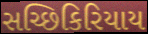
સચ્છિકિરિયાય